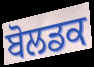
ਬੋਲਡਕ